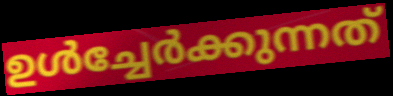
ഉൾച്ചേർക്കുന്നത്